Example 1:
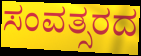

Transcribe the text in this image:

ಸಂವತ್ಸರದ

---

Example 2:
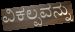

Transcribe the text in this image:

ವಿಕಲ್ಪವನ್ನು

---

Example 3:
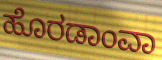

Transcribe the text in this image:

ಹೊರಡಾಂವಾ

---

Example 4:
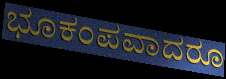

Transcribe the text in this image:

ಭೂಕಂಪವಾದರೂ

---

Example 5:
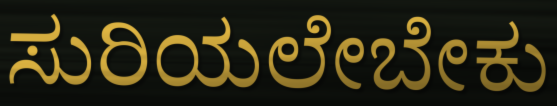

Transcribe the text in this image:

ಸುರಿಯಲೇಬೇಕು